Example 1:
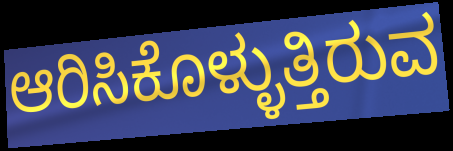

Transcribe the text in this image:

ಆರಿಸಿಕೊಳ್ಳುತ್ತಿರುವ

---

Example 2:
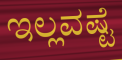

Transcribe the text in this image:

ಇಲ್ಲವಷ್ಟೆ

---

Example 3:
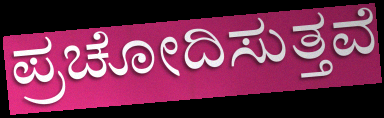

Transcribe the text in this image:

ಪ್ರಚೋದಿಸುತ್ತವೆ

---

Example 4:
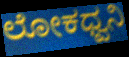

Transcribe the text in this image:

ಲೋಕಧ್ವನಿ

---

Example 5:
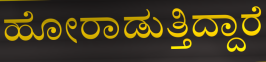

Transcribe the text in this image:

ಹೋರಾಡುತ್ತಿದ್ದಾರೆ